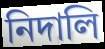
নিদালি